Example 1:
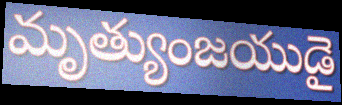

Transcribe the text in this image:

మృత్యుంజయుడై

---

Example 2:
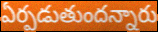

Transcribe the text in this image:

ఏర్పడుతుందన్నారు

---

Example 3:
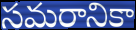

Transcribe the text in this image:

సమరానికా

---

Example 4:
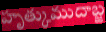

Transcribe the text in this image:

హృత్కుముదాబ్జ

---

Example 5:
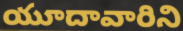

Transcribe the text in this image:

యూదావారిని